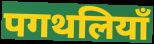
पगथलियाँ